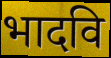
भादवि